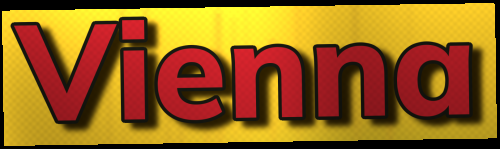
Vienna